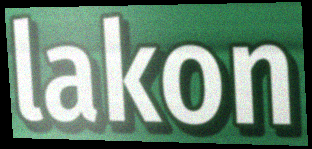
lakon